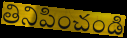
తినిపించండి